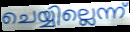
ചെയ്യില്ലെന്ന്